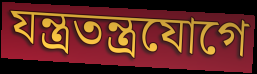
যন্ত্রতন্ত্রযোগে